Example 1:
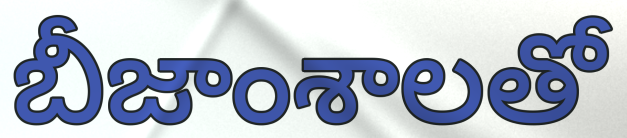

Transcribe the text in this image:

బీజాంశాలతో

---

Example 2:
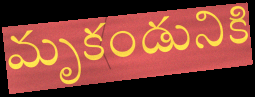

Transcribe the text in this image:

మృకండునికి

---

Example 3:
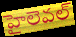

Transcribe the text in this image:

హైలెవల్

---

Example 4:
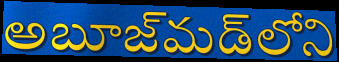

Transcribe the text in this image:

అబూజ్‌మడ్‌లోని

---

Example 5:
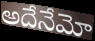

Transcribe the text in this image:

అదేనేమో